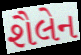
શૈલેન